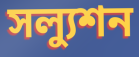
সল্যুশন